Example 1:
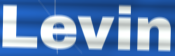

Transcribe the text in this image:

Levin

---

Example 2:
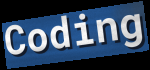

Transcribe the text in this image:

Coding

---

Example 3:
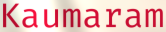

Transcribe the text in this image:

Kaumaram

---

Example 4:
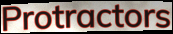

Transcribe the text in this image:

Protractors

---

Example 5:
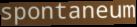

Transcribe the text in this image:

spontaneum